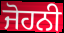
ਜੋਹਨੀ